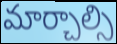
మార్చాల్సి